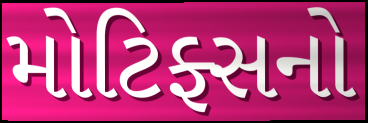
મોટિફ્સનો